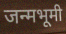
जन्मभूमी